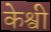
केश्वी